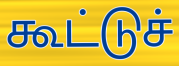
கூட்டுச்